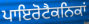
ਪਾਇਰੋਟੈਕਨਿਕਾਂ